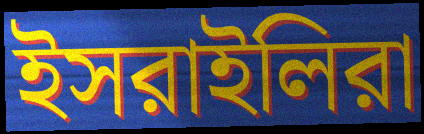
ইসরাইলিরা